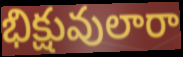
భిక్షువులారా